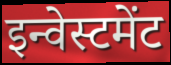
इन्वेस्टमेंट